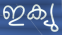
ഇക്യു